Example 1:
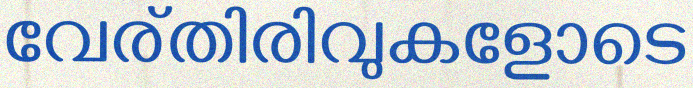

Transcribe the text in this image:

വേര്തിരിവുകളോടെ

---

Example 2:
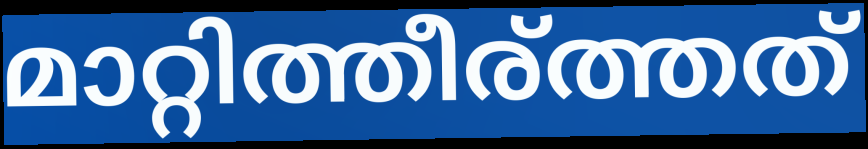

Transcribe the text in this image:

മാറ്റിത്തീര്ത്തത്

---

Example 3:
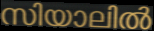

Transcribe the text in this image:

സിയാലിൽ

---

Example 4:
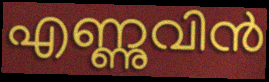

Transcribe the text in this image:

എണ്ണുവിൻ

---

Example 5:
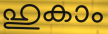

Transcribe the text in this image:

ഹുകാം